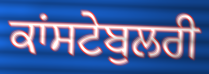
ਕਾਂਸਟੇਬੁਲਰੀ